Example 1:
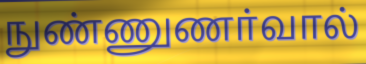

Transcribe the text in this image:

நுண்ணுணர்வால்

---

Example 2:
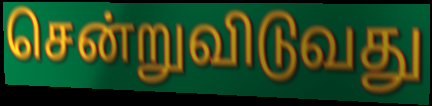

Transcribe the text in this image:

சென்றுவிடுவது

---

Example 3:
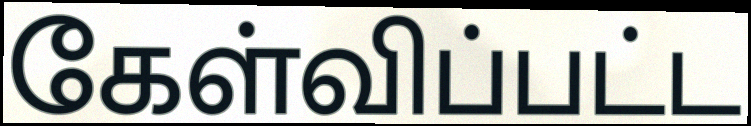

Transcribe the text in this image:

கேள்விப்பட்ட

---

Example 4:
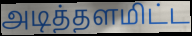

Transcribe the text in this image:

அடித்தளமிட்ட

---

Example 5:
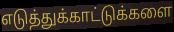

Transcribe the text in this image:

எடுத்துக்காட்டுக்களை